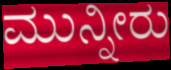
ಮುನ್ನೀರು